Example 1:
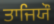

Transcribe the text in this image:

ਤਾਜਿਯੌ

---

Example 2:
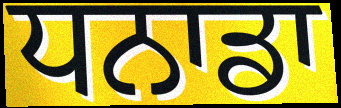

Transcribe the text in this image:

ਧਨਾਡਾ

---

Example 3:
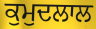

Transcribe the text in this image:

ਕੁਮੁਦਲਾਲ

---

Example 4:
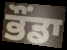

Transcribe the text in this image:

ਭੌਂਡਾ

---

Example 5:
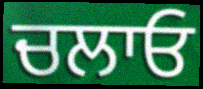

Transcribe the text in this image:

ਚਲਾਓ